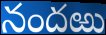
నందఱు